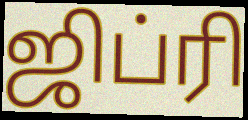
ஜிப்ரி